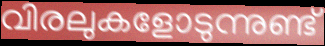
വിരലുകളോടുന്നുണ്ട്